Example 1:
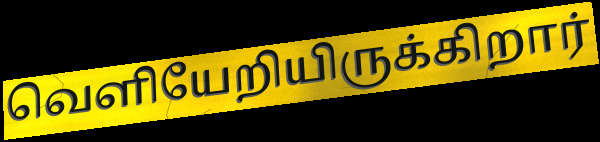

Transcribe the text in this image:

வெளியேறியிருக்கிறார்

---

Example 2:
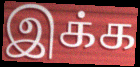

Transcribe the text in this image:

இக்க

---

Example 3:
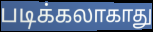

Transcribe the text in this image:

படிக்கலாகாது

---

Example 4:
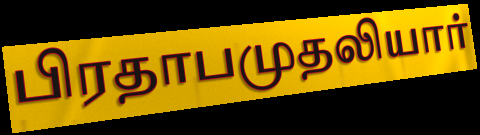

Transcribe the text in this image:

பிரதாபமுதலியார்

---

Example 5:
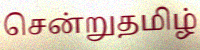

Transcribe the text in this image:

சென்றுதமிழ்